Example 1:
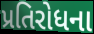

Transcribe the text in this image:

પ્રતિરોધના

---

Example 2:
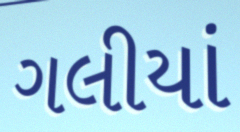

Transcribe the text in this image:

ગલીયાં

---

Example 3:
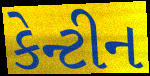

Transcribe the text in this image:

કેન્ટીન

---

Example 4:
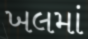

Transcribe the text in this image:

ખલમાં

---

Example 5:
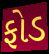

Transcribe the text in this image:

ફોડ